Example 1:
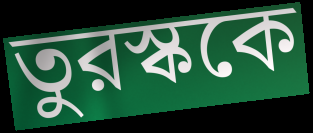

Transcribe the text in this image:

তুরস্ককে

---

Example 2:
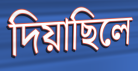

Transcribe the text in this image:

দিয়াছিলে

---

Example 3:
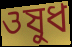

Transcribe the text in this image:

ওষুধ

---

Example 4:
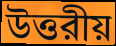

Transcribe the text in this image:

উত্তরীয়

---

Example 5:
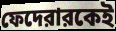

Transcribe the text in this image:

ফেদেরারকেই